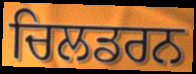
ਚਿਲਡਰਨ